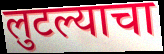
लुटल्याचा